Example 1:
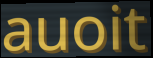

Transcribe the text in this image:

auoit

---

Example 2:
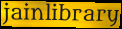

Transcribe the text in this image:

jainlibrary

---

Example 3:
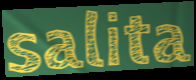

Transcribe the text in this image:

salita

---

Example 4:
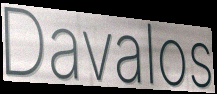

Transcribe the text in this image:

Davalos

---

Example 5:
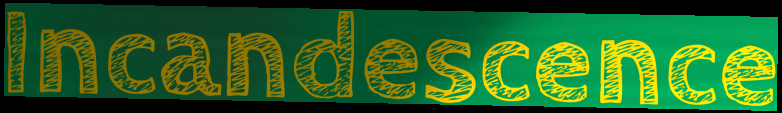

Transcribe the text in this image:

Incandescence